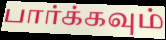
பார்க்கவும்